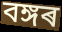
বঙ্গৰ